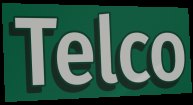
Telco